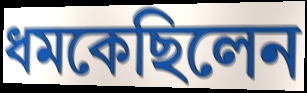
ধমকেছিলেন